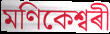
মণিকেশ্বৰী